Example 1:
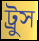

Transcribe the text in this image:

ট্রুস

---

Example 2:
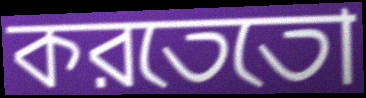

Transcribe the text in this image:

করতেতো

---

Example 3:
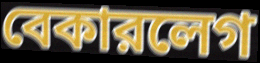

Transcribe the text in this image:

বেকারলেগ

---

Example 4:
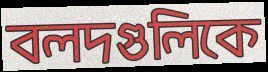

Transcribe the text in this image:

বলদগুলিকে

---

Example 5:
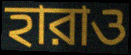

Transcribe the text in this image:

হারাও